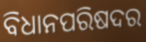
ବିଧାନପରିଷଦର